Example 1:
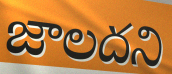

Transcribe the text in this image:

జాలదని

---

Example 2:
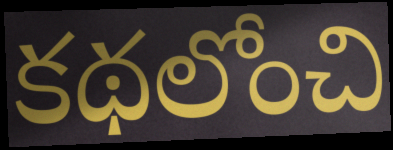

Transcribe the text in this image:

కథలోంచి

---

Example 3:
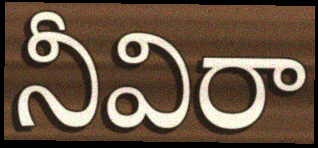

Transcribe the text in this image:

నీవిరా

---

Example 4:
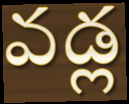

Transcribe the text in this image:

వడ్ల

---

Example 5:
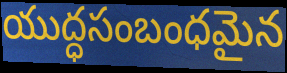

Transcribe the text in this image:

యుద్ధసంబంధమైన